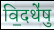
वि॒दथे॑षु